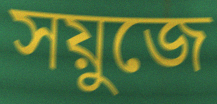
সয়ুজে